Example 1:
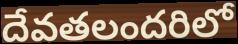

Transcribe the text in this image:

దేవతలందరిలో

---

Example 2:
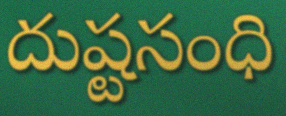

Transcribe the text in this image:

దుష్టసంధి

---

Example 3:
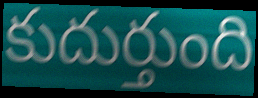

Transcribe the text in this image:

కుదుర్తుంది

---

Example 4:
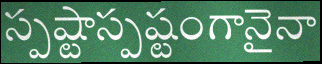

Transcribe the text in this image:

స్పష్టాస్పష్టంగానైనా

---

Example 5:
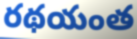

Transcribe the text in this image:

రథయంత